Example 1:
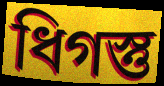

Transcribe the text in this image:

ধিগস্তু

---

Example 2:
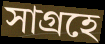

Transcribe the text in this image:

সাগ্রহে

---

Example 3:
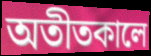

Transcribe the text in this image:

অতীতকালে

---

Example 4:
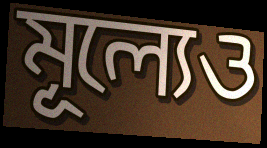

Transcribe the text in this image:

মূল্যেও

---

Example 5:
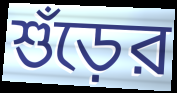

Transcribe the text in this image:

শুঁড়ের